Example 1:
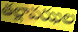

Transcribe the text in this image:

తల్లావఝల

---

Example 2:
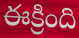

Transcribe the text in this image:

ఈక్రింది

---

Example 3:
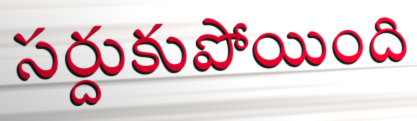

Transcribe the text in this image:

సర్దుకుపోయింది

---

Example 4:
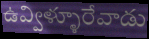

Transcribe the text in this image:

ఉవ్విళ్ళూరేవాడు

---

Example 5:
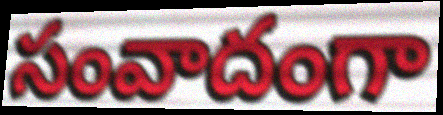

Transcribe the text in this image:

సంవాదంగా